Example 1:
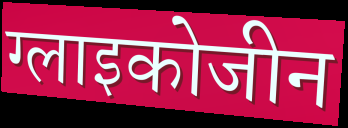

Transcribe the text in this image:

ग्लाइकोजीन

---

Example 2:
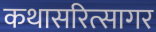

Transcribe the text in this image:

कथासरित्सागर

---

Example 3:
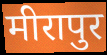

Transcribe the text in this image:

मीरापुर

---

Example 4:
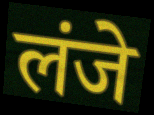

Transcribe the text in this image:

लंजे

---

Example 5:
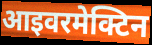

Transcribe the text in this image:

आइवरमेक्टिन